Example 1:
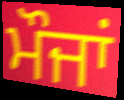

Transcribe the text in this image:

ਮੌਜਾਂ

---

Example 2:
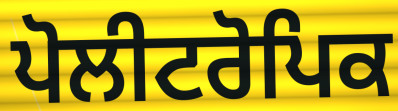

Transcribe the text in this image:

ਪੋਲੀਟਰੋਪਿਕ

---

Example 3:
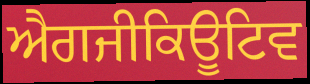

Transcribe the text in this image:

ਐਗਜੀਕਿਊਟਿਵ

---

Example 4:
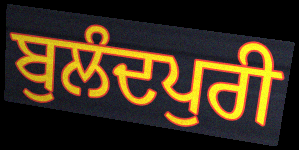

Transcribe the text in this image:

ਬੁਲੰਦਪੁਰੀ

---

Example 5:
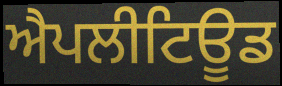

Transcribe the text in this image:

ਐਪਲੀਟਿਊਡ